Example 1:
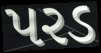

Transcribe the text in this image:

પરડ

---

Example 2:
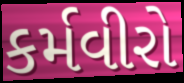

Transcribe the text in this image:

કર્મવીરો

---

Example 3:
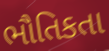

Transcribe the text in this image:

ભૌતિકતા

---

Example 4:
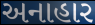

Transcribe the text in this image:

અનાહાર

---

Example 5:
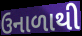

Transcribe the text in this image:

ઉનાળાથી